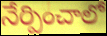
నేర్పించాలో